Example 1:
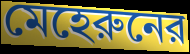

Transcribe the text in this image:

মেহেরুনের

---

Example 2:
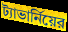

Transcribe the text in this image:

ট্যাভার্নিয়ের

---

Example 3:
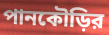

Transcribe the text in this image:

পানকৌড়ির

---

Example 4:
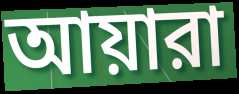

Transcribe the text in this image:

আয়ারা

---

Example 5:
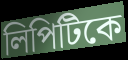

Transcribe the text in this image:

লিপিটিকে